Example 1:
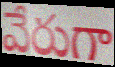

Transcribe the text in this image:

వేరుగా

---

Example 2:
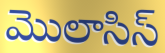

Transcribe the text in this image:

మొలాసిస్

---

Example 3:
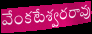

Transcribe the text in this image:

వేంకటేశ్వరరావు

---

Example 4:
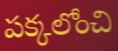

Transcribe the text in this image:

పక్కలోంచి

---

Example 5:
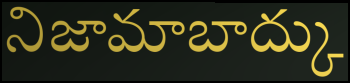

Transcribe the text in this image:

నిజామాబాద్కు